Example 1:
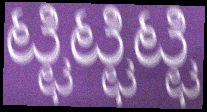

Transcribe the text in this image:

ಟ್ಟಿಟ್ಟಿಟ್ಟಿ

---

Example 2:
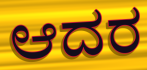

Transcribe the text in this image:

ಆದರ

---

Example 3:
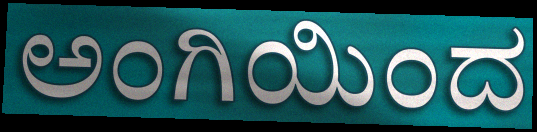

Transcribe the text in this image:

ಅಂಗಿಯಿಂದ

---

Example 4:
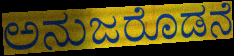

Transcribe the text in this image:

ಅನುಜರೊಡನೆ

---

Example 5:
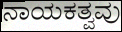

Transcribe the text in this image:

ನಾಯಕತ್ವವು